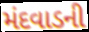
મંદવાડની